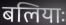
बलियाः